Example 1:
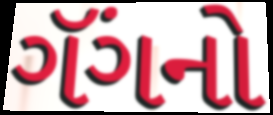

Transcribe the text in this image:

ગૅંગનો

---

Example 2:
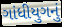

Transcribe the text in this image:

ગાંધીયુગનું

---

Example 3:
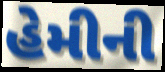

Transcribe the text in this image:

હેમીની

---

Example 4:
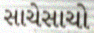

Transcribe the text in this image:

સાચેસાચો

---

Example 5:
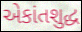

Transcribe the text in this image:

એકાંતશુદ્ધ